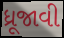
ધ્રૂજાવી